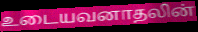
உடையவனாதலின்